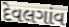
દેવલગાંવ